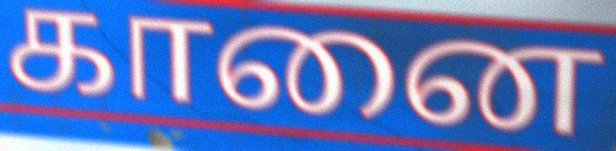
கானை